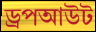
ড্রপআউট